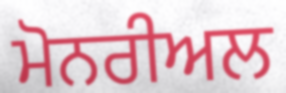
ਮੋਨਰੀਅਲ